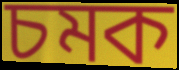
চমক